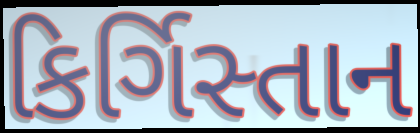
કિર્ગિસ્તાન